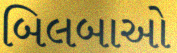
બિલબાઓ